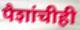
पैशांचीही